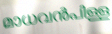
മാധവൻപിള്ള